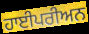
ਹਾਈਪਰੀਅਨ